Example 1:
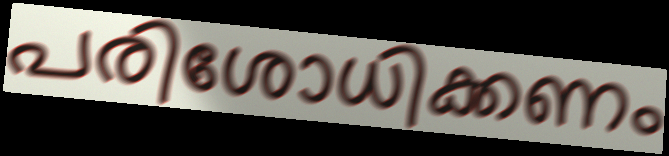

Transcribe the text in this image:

പരിശോധിക്കണം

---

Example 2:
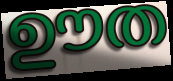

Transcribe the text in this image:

ഊത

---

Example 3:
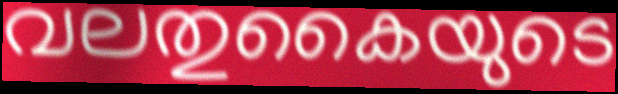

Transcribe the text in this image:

വലതുകൈയുടെ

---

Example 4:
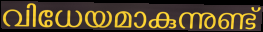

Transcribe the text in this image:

വിധേയമാകുന്നുണ്ട്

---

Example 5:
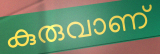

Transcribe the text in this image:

കുരുവാണ്